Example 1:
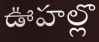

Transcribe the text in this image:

ఊహల్లొ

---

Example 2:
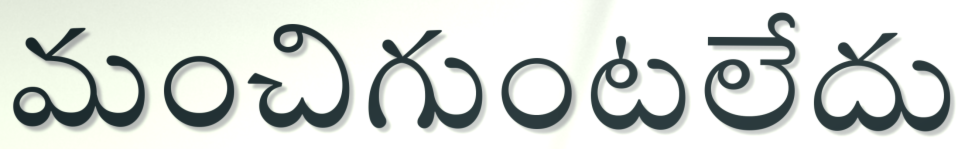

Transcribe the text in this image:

మంచిగుంటలేదు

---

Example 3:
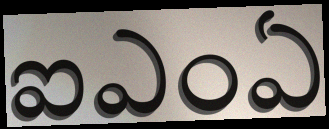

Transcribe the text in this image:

ఐఎంఏ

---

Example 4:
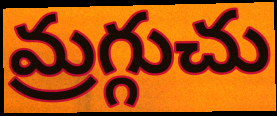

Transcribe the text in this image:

మ్రగ్గుచు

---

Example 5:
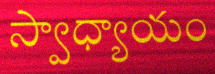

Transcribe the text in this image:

స్వాధ్యాయం